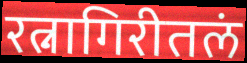
रत्नागिरीतलं